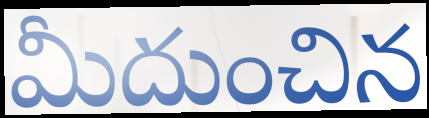
మీదుంచిన